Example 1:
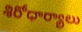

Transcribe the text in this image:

శిరోధార్యాలు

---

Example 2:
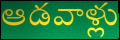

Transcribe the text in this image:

ఆడవాళ్లు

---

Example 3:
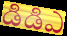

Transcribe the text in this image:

డిడిఎ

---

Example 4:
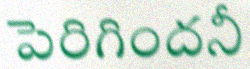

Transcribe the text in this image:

పెరిగిందనీ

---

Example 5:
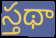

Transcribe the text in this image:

స్తథా